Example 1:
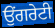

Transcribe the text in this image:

ਉਂਗਰੇਟੀ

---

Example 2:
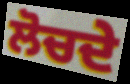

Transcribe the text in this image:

ਲੋਚਦੇ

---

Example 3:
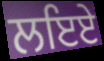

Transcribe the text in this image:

ਲਇਏ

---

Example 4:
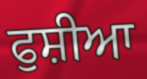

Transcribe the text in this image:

ਫੁਸ਼ੀਆ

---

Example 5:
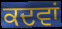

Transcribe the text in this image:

ਕਦਵਾਂ